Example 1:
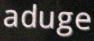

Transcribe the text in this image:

aduge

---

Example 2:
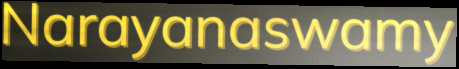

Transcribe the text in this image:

Narayanaswamy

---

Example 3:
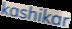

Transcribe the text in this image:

kashikar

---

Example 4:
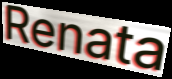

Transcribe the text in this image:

Renata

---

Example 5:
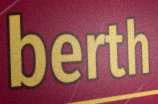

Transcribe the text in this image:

berth